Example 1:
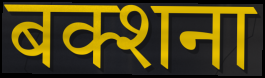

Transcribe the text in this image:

बक्शना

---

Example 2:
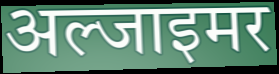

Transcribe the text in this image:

अल्जाइमर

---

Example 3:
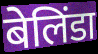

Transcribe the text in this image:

बेलिंडा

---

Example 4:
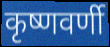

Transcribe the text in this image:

कृष्णवर्णी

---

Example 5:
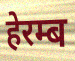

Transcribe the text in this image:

हेरम्ब